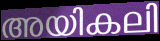
അയികലി